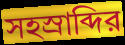
সহস্রাব্দির